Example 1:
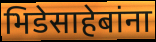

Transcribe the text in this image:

भिडेसाहेबांना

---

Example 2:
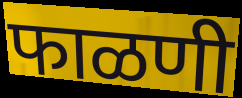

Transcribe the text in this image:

फाळणी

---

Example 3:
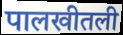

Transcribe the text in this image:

पालखीतली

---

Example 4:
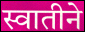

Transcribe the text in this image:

स्वातीने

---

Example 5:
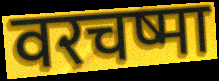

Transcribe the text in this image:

वरचष्मा